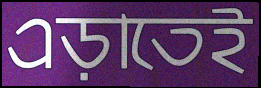
এড়াতেই